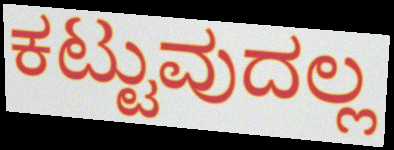
ಕಟ್ಟುವುದಲ್ಲ